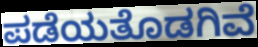
ಪಡೆಯತೊಡಗಿವೆ